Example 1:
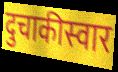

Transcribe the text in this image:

दुचाकीस्वार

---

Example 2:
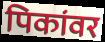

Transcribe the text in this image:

पिकांवर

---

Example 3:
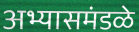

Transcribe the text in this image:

अभ्यासमंडळे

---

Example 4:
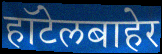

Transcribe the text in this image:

हॉटेलबाहेर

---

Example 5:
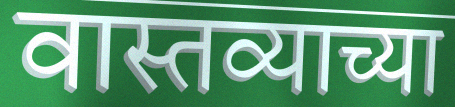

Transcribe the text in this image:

वास्तव्याच्या